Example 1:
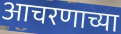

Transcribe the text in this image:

आचरणाच्या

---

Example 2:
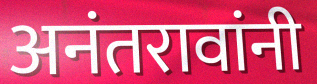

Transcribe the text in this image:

अनंतरावांनी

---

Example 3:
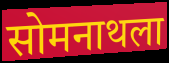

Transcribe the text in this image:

सोमनाथला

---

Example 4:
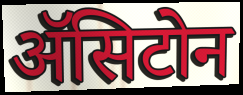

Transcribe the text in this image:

ॲसिटोन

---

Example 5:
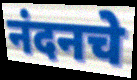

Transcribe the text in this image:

नंदनचे